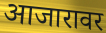
आजारावर